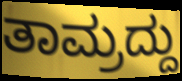
ತಾಮ್ರದ್ದು